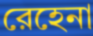
রেহেনা